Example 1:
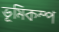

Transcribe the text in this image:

ভূমিকম্প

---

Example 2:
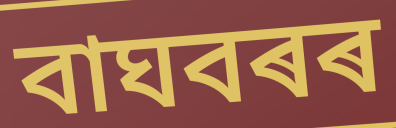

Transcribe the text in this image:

বাঘবৰৰ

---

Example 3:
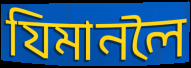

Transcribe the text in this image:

যিমানলৈ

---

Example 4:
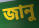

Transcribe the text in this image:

জানু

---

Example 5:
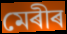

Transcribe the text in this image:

মেৰীৰ